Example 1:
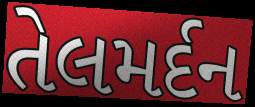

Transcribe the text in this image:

તેલમર્દન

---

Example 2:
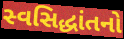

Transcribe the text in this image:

સ્વસિદ્ધાંતનો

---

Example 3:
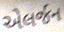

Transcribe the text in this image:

એલર્જન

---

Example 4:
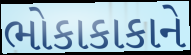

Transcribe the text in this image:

ભોકાકાકાને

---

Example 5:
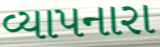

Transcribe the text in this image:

વ્યાપનારા